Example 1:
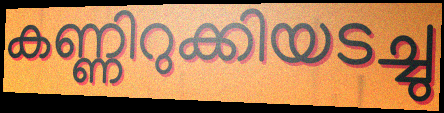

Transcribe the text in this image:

കണ്ണിറുക്കിയടച്ചു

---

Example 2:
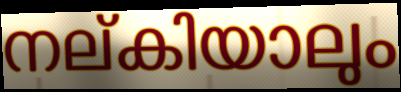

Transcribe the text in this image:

നല്‌കിയാലും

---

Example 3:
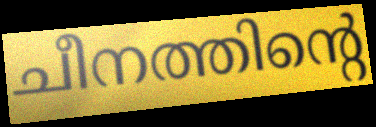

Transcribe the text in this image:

ചീനത്തിന്റെ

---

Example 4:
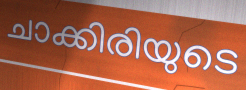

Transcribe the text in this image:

ചാക്കിരിയുടെ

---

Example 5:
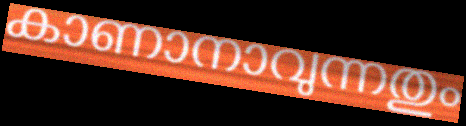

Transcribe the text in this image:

കാണാനാവുന്നതും